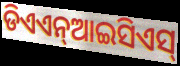
ଡିଏଏନ୍ଆଇସିଏସ୍